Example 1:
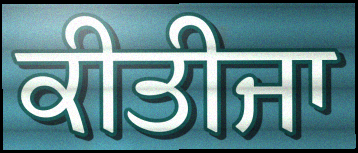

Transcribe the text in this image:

ਕੀਤੀਜਾ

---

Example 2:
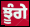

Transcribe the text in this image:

ਝੂੰਗੇ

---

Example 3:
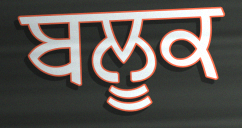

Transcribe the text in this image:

ਬਲੂਕ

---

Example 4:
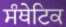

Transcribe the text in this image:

ਸੰਥੇਟਿਕ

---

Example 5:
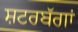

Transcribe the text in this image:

ਸ਼ਟਰਬੱਗਾਂ